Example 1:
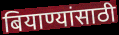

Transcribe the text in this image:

बियाण्यांसाठी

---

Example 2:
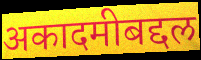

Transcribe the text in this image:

अकादमीबद्दल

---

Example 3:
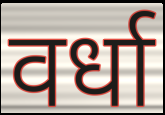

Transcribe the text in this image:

वर्धा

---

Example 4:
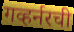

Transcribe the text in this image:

गव्हर्नरची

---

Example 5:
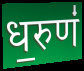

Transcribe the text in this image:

ध॒रुणं॑